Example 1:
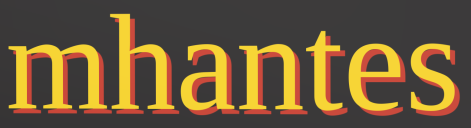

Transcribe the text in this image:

mhantes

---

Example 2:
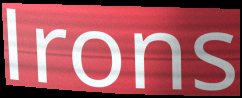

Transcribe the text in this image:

Irons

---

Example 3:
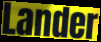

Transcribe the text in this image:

Lander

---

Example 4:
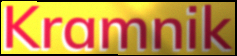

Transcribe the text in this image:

Kramnik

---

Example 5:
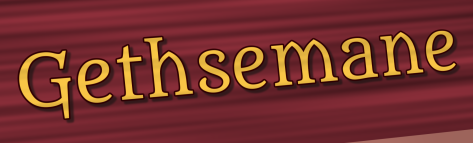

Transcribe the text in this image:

Gethsemane